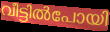
വീട്ടിൽപോയി